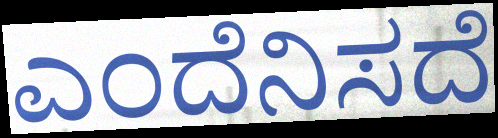
ಎಂದೆನಿಸದೆ